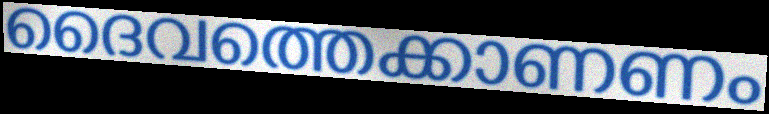
ദൈവത്തെക്കാണണം